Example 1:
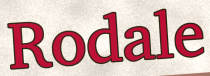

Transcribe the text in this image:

Rodale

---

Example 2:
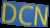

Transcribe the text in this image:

DCN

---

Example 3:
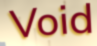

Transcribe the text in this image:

Void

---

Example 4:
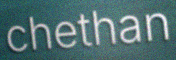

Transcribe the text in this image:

chethan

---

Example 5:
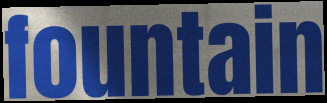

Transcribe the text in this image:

fountain